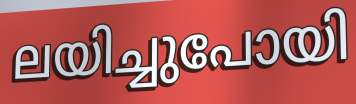
ലയിച്ചുപോയി